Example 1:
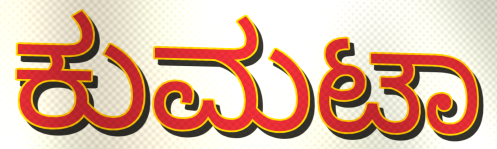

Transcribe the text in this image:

ಕುಮಟಾ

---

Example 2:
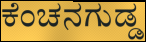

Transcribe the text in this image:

ಕೆಂಚನಗುಡ್ಡ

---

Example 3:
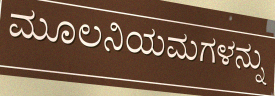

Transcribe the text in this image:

ಮೂಲನಿಯಮಗಳನ್ನು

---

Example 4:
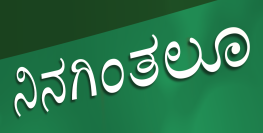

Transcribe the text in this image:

ನಿನಗಿಂತಲೂ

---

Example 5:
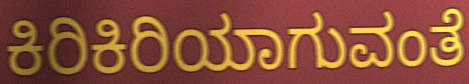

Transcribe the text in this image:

ಕಿರಿಕಿರಿಯಾಗುವಂತೆ